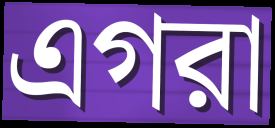
এগরা